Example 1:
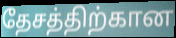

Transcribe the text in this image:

தேசத்திற்கான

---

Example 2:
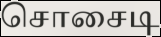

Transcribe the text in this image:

சொசைடி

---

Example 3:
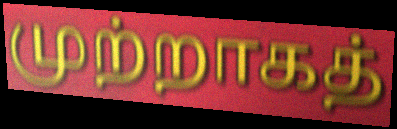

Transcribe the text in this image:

முற்றாகத்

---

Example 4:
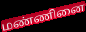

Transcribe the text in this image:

மண்ணினை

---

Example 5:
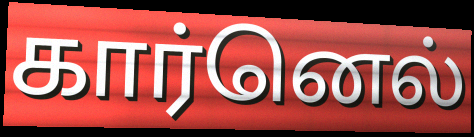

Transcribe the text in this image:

கார்னெல்